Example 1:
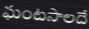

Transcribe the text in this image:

ఘంటసాలదే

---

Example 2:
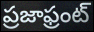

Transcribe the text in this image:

ప్రజాఫ్రంట్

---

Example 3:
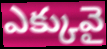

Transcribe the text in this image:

ఎక్కువై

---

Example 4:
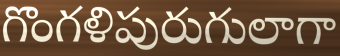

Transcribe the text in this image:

గొంగళిపురుగులాగా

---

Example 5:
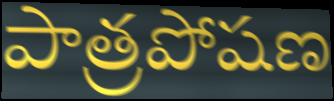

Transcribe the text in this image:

పాత్రపోషణ